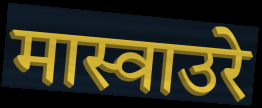
मास्वाउरे